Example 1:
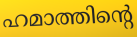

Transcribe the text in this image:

ഹമാത്തിന്റെ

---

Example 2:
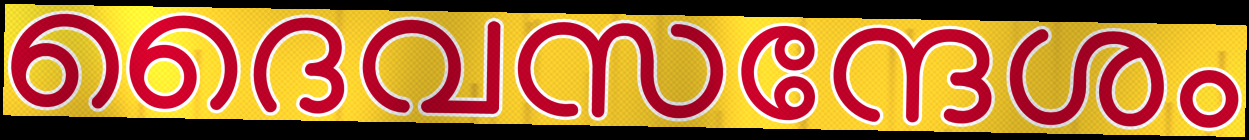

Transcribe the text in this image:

ദൈവസന്ദേശം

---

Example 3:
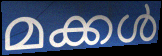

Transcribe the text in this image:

മക്കൾ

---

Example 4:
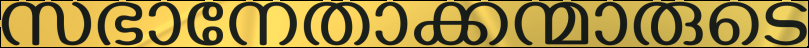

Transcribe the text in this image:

സഭാനേതാക്കന്മാരുടെ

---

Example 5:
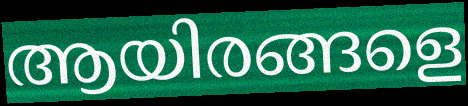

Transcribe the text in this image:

ആയിരങ്ങളെ